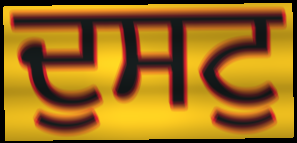
ਦੁਸਟੁ